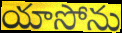
యాసోను